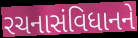
રચનાસંવિધાનને